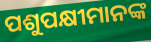
ପଶୁପକ୍ଷୀମାନଙ୍କ